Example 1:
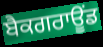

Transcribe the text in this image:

ਬੈਕਗਰਾਊਂਡ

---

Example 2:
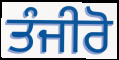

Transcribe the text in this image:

ਤੰਜੀਰੋ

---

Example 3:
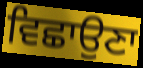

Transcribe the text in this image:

ਵਿਛਾਉਣਾ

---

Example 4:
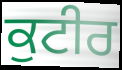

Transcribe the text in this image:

ਕੁਟੀਰ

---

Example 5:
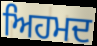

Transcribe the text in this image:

ਅਿਹਮਦ